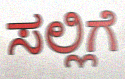
ಸಲ್ಲಿಗೆ